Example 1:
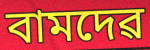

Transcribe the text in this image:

বামদেৱ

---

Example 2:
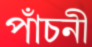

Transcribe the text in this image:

পাঁচনী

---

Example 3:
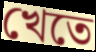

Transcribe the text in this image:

খেতে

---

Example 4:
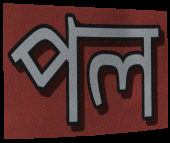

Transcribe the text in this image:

পল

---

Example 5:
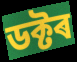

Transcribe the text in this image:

ডক্টৰ